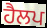
ਹੈਲਪ